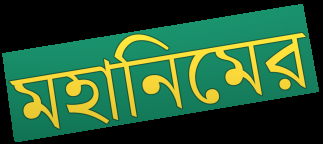
মহানিমের